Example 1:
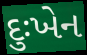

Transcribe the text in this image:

દુઃખેન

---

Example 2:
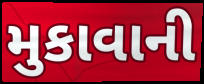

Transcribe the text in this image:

મુકાવાની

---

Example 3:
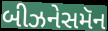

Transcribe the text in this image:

બીઝનેસમૅન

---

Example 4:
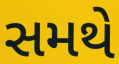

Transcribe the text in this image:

સમથે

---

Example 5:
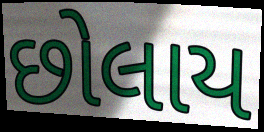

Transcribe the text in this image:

છોલાય